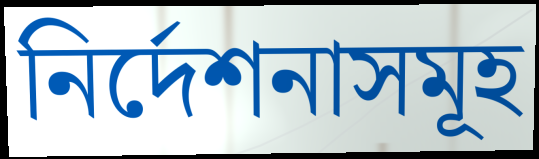
নির্দেশনাসমূহ